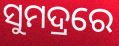
ସୁମଦ୍ରରେ